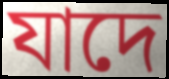
যাদে